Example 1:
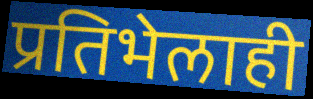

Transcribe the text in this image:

प्रतिभेलाही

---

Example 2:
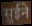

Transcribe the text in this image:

सुईने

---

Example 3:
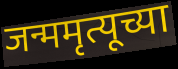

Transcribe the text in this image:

जन्ममृत्यूच्या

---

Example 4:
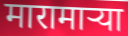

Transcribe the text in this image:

मारामार्‍या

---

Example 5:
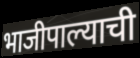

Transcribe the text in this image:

भाजीपाल्याची